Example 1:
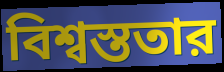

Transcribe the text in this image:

বিশ্বস্ততার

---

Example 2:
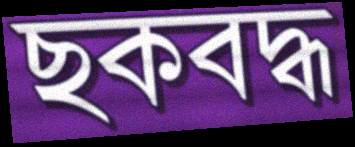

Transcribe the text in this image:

ছকবদ্ধ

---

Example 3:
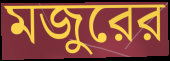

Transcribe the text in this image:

মজুরের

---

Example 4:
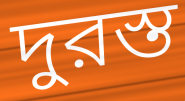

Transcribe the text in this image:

দুরস্ত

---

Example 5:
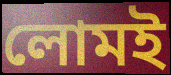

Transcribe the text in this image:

লোমই